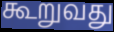
கூறுவது